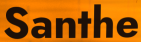
Santhe